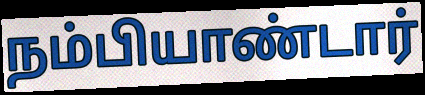
நம்பியாண்டார்